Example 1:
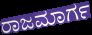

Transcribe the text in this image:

ರಾಜಮಾರ್ಗ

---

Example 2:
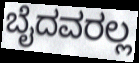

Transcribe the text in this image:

ಬೈದವರಲ್ಲ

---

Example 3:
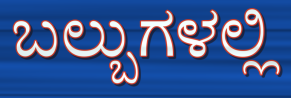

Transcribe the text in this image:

ಬಲ್ಬುಗಳಲ್ಲಿ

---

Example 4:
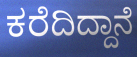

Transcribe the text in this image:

ಕರೆದಿದ್ದಾನೆ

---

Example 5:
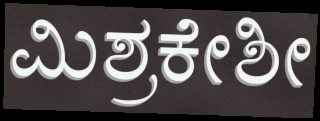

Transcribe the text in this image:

ಮಿಶ್ರಕೇಶೀ